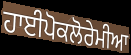
ਹਾਈਪੋਕਲੋਰੇਮੀਆ